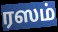
ரஸம்